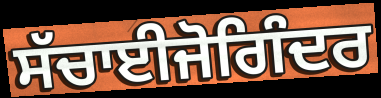
ਸੱਚਾਈਜੋਗਿੰਦਰ